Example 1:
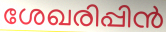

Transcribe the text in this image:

ശേഖരിപ്പിൻ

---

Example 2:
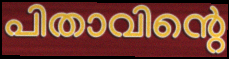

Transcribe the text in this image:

പിതാവിന്റെ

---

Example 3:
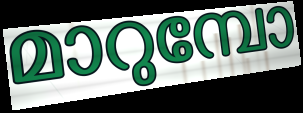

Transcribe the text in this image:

മാറുമ്പോ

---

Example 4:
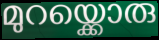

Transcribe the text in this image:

മുറയ്ക്കൊരു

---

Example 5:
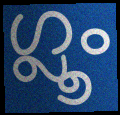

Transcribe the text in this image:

ഗ്ലൂം